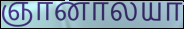
ஞானாலயா